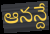
ఆనన్దే